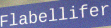
Flabellifer